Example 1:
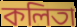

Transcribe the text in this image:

কলিতা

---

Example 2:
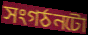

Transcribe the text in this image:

সংগঠনটো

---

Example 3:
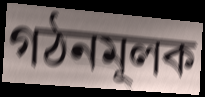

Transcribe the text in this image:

গঠনমূলক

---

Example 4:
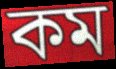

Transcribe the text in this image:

কম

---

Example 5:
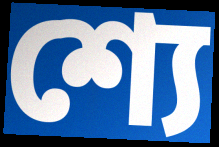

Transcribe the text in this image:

শ্যে